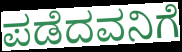
ಪಡೆದವನಿಗೆ